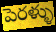
పెరళ్ళు